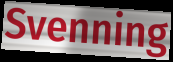
Svenning